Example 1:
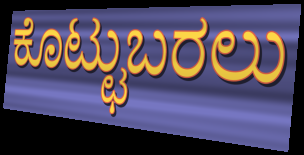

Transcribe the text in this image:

ಕೊಟ್ಟುಬರಲು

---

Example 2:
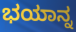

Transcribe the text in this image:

ಭಯಾನ್ನ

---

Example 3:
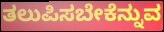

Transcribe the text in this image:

ತಲುಪಿಸಬೇಕೆನ್ನುವ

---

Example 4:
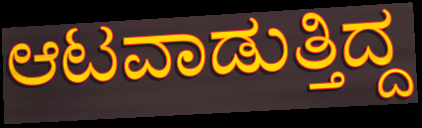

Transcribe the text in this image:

ಆಟವಾಡುತ್ತಿದ್ದ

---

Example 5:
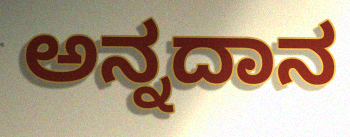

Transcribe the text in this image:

ಅನ್ನದಾನ